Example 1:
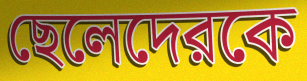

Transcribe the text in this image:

ছেলেদেরকে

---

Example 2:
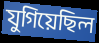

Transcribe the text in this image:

যুগিয়েছিল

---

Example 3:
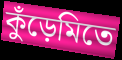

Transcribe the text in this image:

কুঁড়েমিতে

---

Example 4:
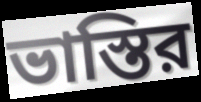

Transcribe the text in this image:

ভাস্তির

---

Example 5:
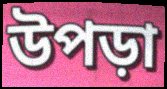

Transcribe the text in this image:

উপড়া